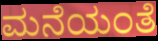
ಮನೆಯಂತೆ